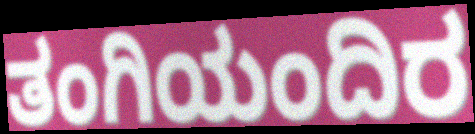
ತಂಗಿಯಂದಿರ